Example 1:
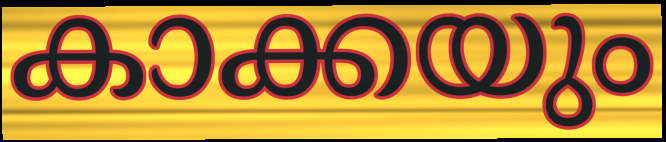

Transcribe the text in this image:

കാക്കയും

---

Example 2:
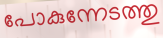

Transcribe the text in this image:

പോകുന്നേടത്തു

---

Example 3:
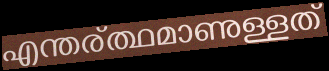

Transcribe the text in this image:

എന്തര്ത്ഥമാണുള്ളത്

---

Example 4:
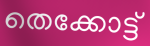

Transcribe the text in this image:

തെക്കോട്ട്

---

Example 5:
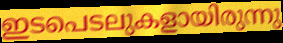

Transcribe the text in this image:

ഇടപെടലുകളായിരുന്നു